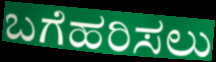
ಬಗೆಹರಿಸಲು